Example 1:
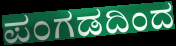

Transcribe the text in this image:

ಪಂಗಡದಿಂದ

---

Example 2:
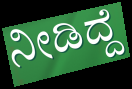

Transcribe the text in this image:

ನೀಡಿದ್ದೆ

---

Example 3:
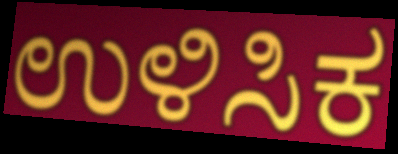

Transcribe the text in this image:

ಉಳಿಸಿಕ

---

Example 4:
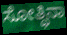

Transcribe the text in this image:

ಸೋತ್ಥಿನಾ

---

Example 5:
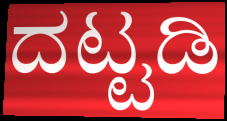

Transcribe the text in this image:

ದಟ್ಟಡಿ